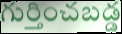
గుర్తించబడ్డ